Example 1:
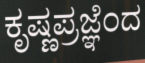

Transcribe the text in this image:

ಕೃಷ್ಣಪ್ರಜ್ಞೆಂದ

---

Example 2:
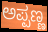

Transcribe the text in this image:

ಅಪ್ಪಣ್ಣ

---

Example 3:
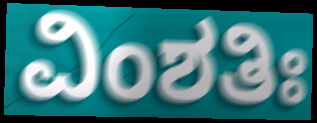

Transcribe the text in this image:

ವಿಂಶತಿಃ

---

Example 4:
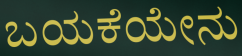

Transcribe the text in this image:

ಬಯಕೆಯೇನು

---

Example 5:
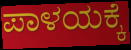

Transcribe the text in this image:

ಪಾಳಯಕ್ಕೆ